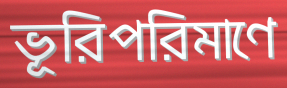
ভূরিপরিমাণে